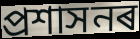
প্ৰশাসনৰ